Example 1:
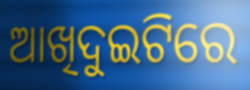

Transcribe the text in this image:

ଆଖିଦୁଇଟିରେ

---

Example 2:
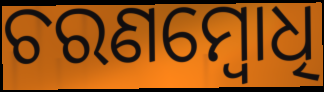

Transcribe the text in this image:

ଚରଣମ୍ବୋଧି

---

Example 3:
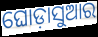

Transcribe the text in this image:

ଘୋଡ଼ାସୁଆର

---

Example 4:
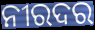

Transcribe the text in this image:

ନୀରଦର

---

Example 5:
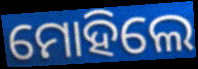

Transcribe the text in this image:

ମୋହିଲେ